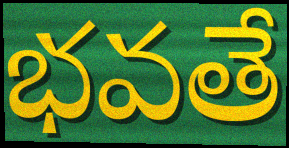
భవతే